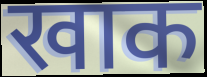
खाक